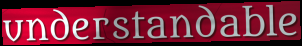
understandable